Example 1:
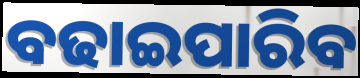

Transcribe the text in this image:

ବଢାଇପାରିବ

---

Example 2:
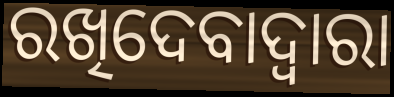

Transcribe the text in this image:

ରଖିଦେବାଦ୍ୱାରା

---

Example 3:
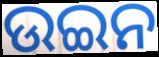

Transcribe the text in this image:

ଉଇନ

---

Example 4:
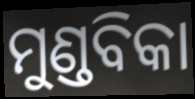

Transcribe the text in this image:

ମୁଣ୍ଡବିକା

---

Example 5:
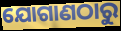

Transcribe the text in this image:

ଯୋଗାଣଠାରୁ